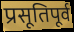
प्रसूतिपूर्व